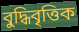
বুদ্ধিবৃত্তিক